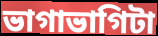
ভাগাভাগিটা